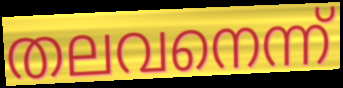
തലവനെന്ന്